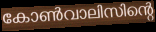
കോൺവാലിസിന്റെ